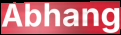
Abhang